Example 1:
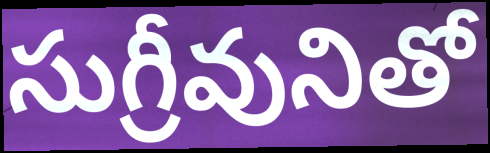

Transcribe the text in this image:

సుగ్రీవునితో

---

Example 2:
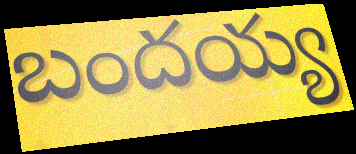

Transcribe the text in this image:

బందయ్య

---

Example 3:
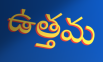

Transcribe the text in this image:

ఉత్తమ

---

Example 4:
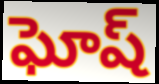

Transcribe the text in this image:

ఘోష్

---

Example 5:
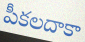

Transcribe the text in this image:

పీకలదాకా